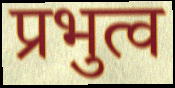
प्रभुत्व